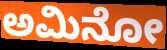
ಅಮಿನೋ